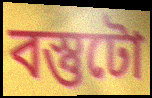
বস্তুটো